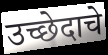
उच्छेदाचे